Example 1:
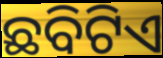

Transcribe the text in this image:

ଛବିଟିଏ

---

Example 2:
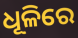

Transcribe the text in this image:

ଧୂଳିରେ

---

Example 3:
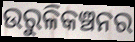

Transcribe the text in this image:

ଉରୁଳିକଞ୍ଚନର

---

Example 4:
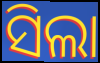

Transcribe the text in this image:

ସିଲା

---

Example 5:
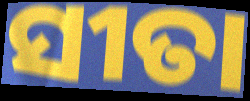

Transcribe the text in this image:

ସୀତା